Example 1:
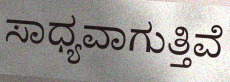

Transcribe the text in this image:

ಸಾಧ್ಯವಾಗುತ್ತಿವೆ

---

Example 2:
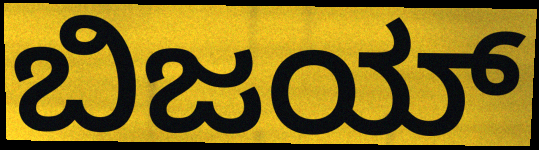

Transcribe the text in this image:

ಬಿಜಯ್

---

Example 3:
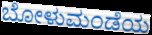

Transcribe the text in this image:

ಬೋಳುಮಂಡೆಯ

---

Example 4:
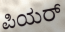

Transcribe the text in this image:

ಪಿಯರ್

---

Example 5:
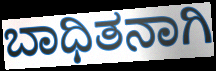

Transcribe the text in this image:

ಬಾಧಿತನಾಗಿ